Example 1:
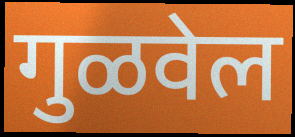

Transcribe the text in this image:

गुळवेल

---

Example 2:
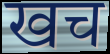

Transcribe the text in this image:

खच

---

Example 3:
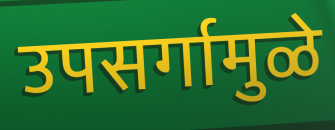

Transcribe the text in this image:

उपसर्गामुळे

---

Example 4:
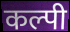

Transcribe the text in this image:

कल्पी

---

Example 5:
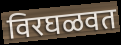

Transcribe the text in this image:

विरघळवत